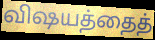
விஷயத்தைத்